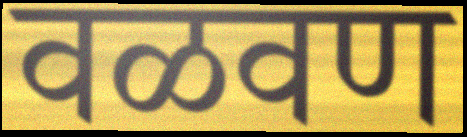
वळवण